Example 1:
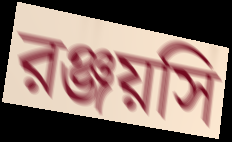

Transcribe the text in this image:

রঞ্জয়সি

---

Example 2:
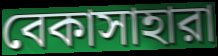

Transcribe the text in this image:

বেকাসাহারা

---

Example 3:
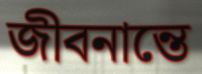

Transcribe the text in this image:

জীবনান্তে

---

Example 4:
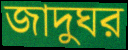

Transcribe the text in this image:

জাদুঘর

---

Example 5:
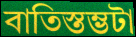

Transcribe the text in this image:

বাতিস্তম্ভটা